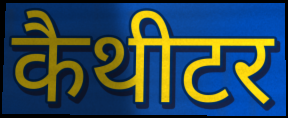
कैथीटर